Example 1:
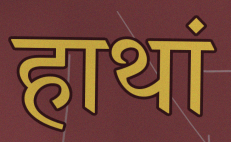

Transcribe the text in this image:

हाथां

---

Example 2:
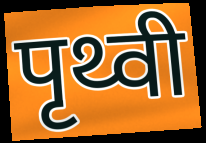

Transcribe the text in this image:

पृथ्‍वी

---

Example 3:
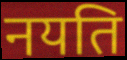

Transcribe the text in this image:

नयति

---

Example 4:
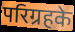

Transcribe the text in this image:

परिग्रहके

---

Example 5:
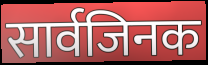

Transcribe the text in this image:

सार्वजिनक